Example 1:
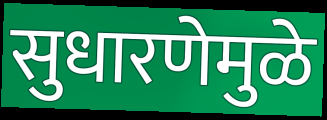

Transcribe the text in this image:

सुधारणेमुळे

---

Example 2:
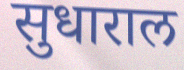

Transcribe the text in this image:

सुधाराल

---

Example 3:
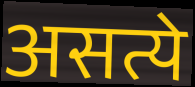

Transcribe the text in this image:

असत्ये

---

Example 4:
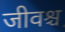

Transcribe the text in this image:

जीवश्च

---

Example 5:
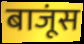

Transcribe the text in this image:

बाजूंस